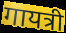
गायत्री